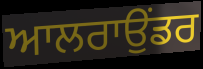
ਆਲਰਾਉਂਡਰ